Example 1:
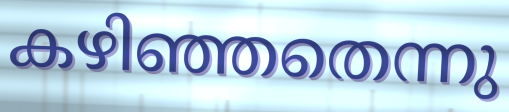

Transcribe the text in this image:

കഴിഞ്ഞതെന്നു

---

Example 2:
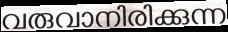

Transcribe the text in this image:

വരുവാനിരിക്കുന്ന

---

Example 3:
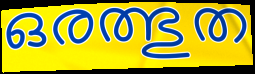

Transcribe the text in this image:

ഒരത്ഭുത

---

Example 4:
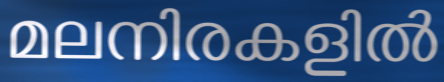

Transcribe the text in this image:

മലനിരകളിൽ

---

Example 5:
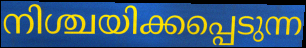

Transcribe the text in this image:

നിശ്ചയിക്കപ്പെടുന്ന